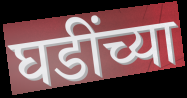
घडींच्या